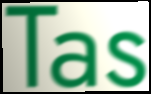
Tas